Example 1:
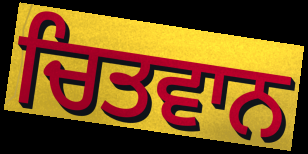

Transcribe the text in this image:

ਚਿਤਵਾਨ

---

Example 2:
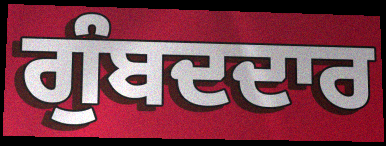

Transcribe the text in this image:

ਗੁੰਬਦਦਾਰ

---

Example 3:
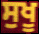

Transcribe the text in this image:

ਸੁਖੂ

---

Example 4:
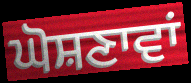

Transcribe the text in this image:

ਘੋਸ਼ਣਾਵਾਂ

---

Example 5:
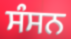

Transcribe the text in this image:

ਸੰਸਨ